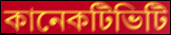
কানেকটিভিটি